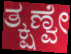
ತ್ಕ್ಷಣ್ವೇ